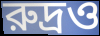
রুদ্রও